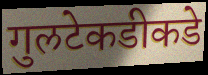
गुलटेकडीकडे